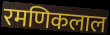
रमणिकलाल